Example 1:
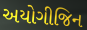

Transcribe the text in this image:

અયોગીજિન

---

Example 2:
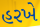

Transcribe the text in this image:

હરખે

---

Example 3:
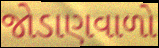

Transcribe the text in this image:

જોડાણવાળો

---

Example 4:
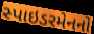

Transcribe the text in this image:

સ્પાઇડરમેનનો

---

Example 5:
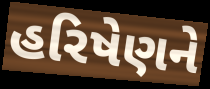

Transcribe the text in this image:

હરિષેણને